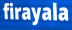
firayala